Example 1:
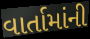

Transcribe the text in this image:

વાર્તામાંની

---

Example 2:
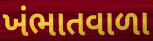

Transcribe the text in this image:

ખંભાતવાળા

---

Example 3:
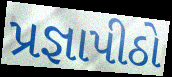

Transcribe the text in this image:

પ્રજ્ઞાપીઠો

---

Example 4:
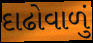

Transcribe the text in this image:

દાઢોવાળું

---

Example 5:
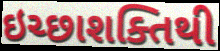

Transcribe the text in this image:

ઇચ્છાશક્તિથી